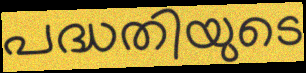
പദ്ധതിയുടെ